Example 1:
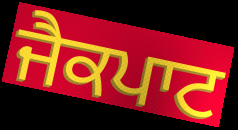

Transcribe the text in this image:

ਜੈਕਪਾਟ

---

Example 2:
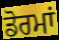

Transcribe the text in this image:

ਡੋਰਮਾਂ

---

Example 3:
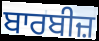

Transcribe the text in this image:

ਬਾਰਬੀਜ਼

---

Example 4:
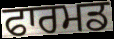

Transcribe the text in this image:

ਫਾਰਮਡ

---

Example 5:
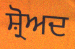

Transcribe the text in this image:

ਸ਼੍ਰੋਅਦ